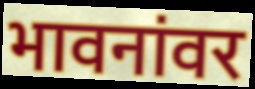
भावनांवर